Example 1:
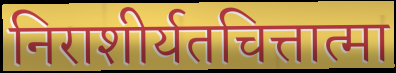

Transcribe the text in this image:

निराशीर्यतचित्तात्मा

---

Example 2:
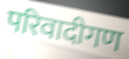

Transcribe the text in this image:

परिवादीगण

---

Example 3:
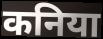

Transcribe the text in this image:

कनिया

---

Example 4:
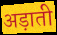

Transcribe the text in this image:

अड़ाती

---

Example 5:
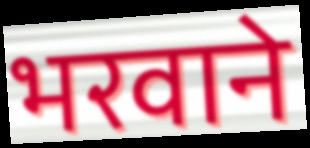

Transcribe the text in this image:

भरवाने